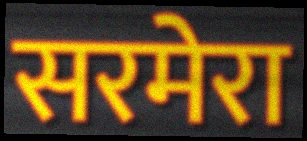
सरमेरा